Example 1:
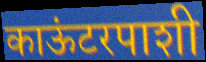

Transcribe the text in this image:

काऊंटरपाशी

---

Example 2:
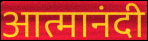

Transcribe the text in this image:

आत्मानंदी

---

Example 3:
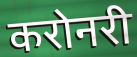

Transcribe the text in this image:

करोनरी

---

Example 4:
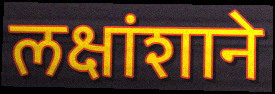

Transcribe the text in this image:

लक्षांशाने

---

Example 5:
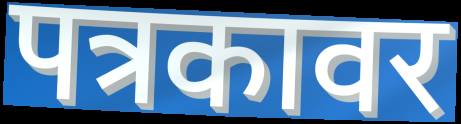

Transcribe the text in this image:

पत्रकावर